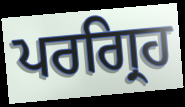
ਪਰਗ੍ਰਿਹ